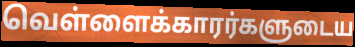
வெள்ளைக்காரர்களுடைய